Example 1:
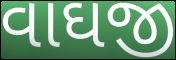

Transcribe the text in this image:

વાઘજી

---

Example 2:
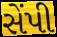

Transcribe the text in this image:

સેંપી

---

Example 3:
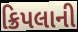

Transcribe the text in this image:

ક્રિપલાની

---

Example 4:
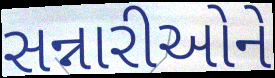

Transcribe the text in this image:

સન્નારીઓને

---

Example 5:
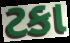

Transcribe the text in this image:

ટકા